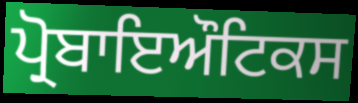
ਪ੍ਰੋਬਾਇਔਟਿਕਸ